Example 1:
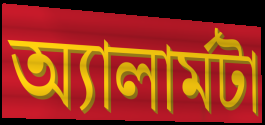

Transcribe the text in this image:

অ্যালার্মটা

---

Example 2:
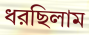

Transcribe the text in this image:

ধরছিলাম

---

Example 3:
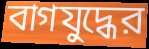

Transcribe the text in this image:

বাগযুদ্ধের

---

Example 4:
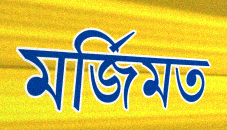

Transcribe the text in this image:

মর্জিমত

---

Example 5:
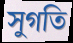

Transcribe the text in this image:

সুগতি